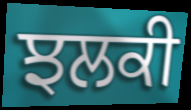
ਝਲਕੀ